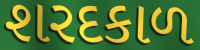
શરદકાળ